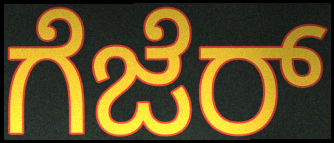
ಗೆಜೆರ್